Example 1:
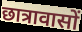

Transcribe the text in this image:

छात्रावासों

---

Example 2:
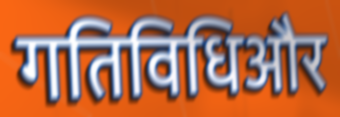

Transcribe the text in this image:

गतिविधिऔर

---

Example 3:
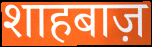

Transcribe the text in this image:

शाहबाज़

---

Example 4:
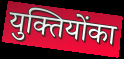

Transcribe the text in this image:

युक्तियोंका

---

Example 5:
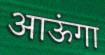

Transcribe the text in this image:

आऊंगा